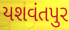
યશવંતપુર